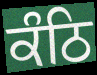
ਕੰਠਿ